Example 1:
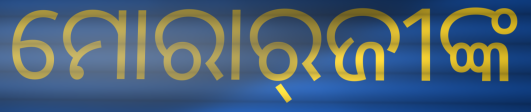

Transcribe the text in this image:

ମୋରାର୍‌ଜୀଙ୍କ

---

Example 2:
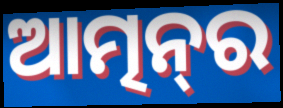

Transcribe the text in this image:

ଆତ୍ମନ୍‌ର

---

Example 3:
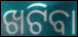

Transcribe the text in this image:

ଖଟିବା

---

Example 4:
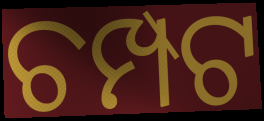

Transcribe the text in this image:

ଚମ୍ପଟ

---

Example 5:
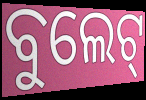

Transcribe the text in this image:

ବୁଲେଟ୍